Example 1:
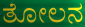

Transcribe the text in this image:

ತೋಲನ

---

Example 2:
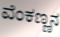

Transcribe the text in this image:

ವೆಂಕಣ್ಣನ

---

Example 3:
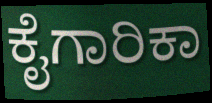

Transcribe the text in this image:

ಕೈಗಾರಿಕಾ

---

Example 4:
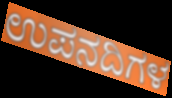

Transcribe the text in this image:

ಉಪನದಿಗಳ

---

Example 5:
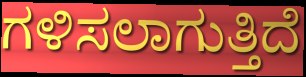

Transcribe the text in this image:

ಗಳಿಸಲಾಗುತ್ತಿದೆ